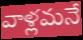
వాళ్లమనే